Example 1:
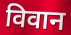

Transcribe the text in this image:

विवान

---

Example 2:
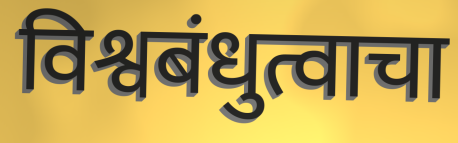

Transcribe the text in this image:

विश्वबंधुत्वाचा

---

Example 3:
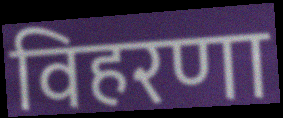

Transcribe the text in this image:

विहरणा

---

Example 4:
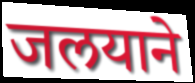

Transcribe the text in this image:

जलयाने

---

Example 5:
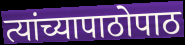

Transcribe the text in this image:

त्यांच्यापाठोपाठ